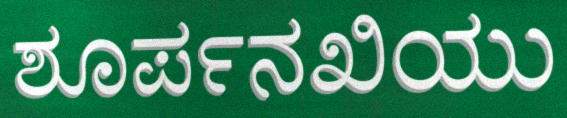
ಶೂರ್ಪನಖಿಯು